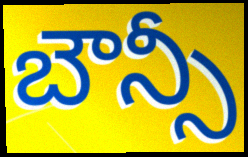
బౌన్సీ